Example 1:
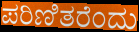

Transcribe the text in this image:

ಪರಿಣಿತರೆಂದು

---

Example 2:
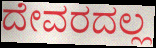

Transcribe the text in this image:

ದೇವರದಲ್ಲ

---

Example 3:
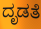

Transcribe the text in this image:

ದೃಡತೆ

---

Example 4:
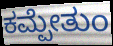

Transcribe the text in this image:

ಕಮ್ಪೇತುಂ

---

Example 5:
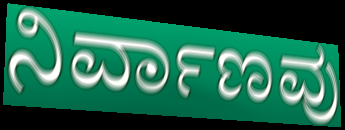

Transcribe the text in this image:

ನಿರ್ವಾಣವು